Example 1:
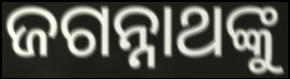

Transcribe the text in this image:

ଜଗନ୍ନାଥଙ୍କୁ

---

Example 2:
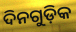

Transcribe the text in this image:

ଦିନଗୁଡ଼ିକ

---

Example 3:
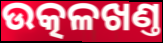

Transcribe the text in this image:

ଉତ୍କଳଖଣ୍ତ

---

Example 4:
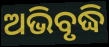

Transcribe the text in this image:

ଅଭିବୃଦ୍ଧି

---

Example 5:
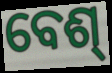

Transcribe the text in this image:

ବେଶ୍